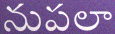
నుపలా